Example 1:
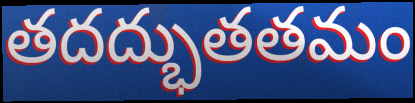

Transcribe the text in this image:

తదద్భుతతమం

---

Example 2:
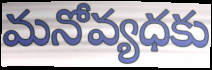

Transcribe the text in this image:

మనోవ్యధకు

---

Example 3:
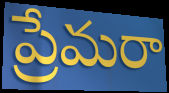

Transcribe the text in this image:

ప్రేమరా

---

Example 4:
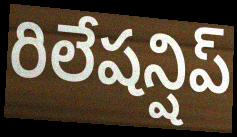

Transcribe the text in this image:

రిలేషన్షిప్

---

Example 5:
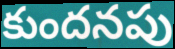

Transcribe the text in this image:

కుందనపు